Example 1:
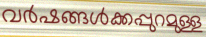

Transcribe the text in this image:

വർഷങ്ങൾക്കപ്പുറമുള്ള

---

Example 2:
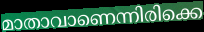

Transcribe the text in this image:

മാതാവാണെന്നിരിക്കെ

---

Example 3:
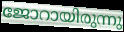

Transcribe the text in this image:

ജോറായിരുന്നു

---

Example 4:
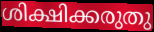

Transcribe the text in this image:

ശിക്ഷിക്കരുതു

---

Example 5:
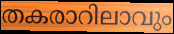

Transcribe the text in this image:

തകരാറിലാവും